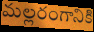
మల్లరంగానికి